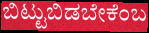
ಬಿಟ್ಟುಬಿಡಬೇಕೆಂಬ